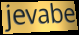
jevabe